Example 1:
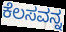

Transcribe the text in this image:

ಕೆಲಸವನ್ನ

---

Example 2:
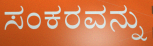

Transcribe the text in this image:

ಸಂಕರವನ್ನು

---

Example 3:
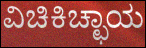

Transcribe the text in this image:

ವಿಚಿಕಿಚ್ಛಾಯ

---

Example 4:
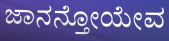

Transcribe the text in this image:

ಜಾನನ್ತೋಯೇವ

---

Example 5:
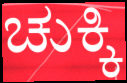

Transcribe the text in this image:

ಚುಕ್ಕಿ